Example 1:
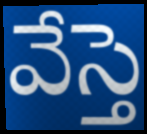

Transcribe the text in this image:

వేస్తె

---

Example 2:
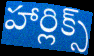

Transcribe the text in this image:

హార్లిక్స్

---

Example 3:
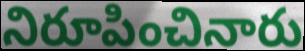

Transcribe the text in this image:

నిరూపించినారు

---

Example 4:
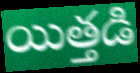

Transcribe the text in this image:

యిత్తడి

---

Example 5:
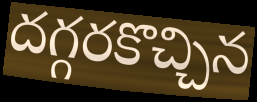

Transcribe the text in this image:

దగ్గరకొచ్చిన